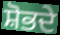
ਸ਼ੋਭਦੇ